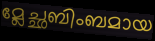
മ്ലേച്ഛബിംബമായ